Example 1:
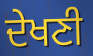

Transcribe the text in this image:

ਦੇਖਣੀ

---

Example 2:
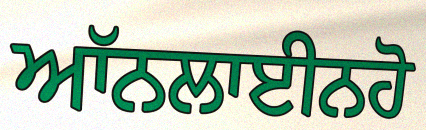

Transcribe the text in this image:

ਆੱਨਲਾਈਨਹੋ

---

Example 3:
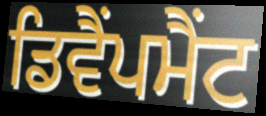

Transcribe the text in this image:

ਡਿਵੈਂਪਮੈਂਟ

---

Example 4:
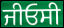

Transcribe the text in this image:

ਜੀਓਸੀ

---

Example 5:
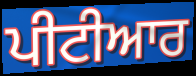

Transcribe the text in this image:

ਪੀਟੀਆਰ